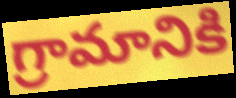
గ్రామానికి